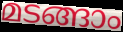
മടങ്ങാം